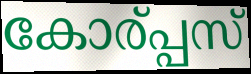
കോര്പ്പസ്